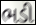
ભડી